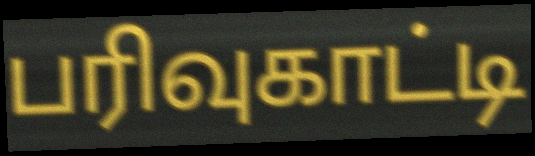
பரிவுகாட்டி